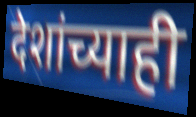
देशांच्याही